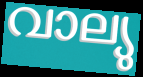
വാല്യു